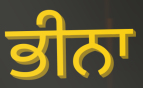
ਭੀਨਾ